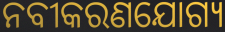
ନବୀକରଣଯୋଗ୍ୟ